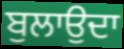
ਬੁਲਾਉਦਾ